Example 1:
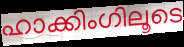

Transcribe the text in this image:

ഹാക്കിംഗിലൂടെ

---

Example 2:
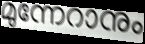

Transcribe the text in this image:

മുന്നേറാനും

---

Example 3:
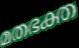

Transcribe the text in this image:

മതഭക്ത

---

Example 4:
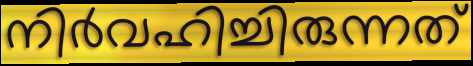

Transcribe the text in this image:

നിർവഹിച്ചിരുന്നത്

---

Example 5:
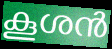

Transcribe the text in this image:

കൂശൻ